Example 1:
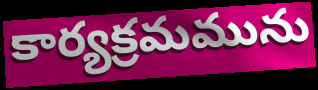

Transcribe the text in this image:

కార్యక్రమమును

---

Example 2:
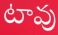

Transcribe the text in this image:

టావు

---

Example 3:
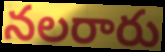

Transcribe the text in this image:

నలరారు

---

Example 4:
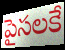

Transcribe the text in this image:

పైసలకే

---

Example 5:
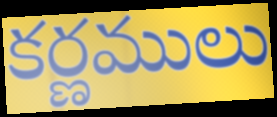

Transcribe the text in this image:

కర్ణములు